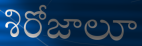
శిరోజాలూ